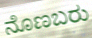
ನೊಣಬರು